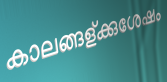
കാലങ്ങള്ക്കുശേഷം